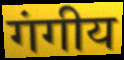
गंगीय